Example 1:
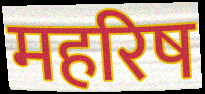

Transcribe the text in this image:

महरिष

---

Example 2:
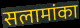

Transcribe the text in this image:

सलामांका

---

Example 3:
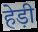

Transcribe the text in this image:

हेड़ी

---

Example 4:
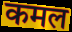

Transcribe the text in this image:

कमल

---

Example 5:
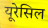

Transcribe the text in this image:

यूरेसिल